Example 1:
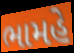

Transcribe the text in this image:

ભામહે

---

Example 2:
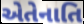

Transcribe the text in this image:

એતેનાતિ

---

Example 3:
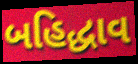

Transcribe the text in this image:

બહિદ્ધાવ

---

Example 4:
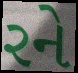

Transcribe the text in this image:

રને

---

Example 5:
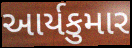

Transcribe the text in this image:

આર્યકુમાર